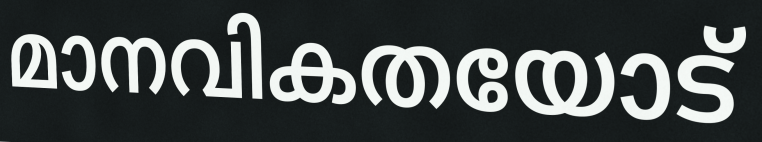
മാനവികതയോട്